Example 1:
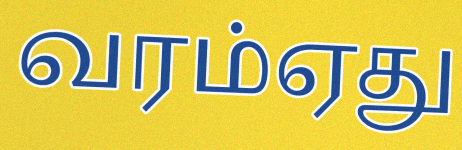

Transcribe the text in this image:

வரம்ஏது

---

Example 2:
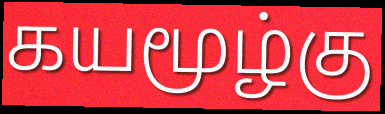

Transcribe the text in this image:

கயமூழ்கு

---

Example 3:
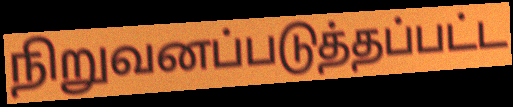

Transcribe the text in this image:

நிறுவனப்படுத்தப்பட்ட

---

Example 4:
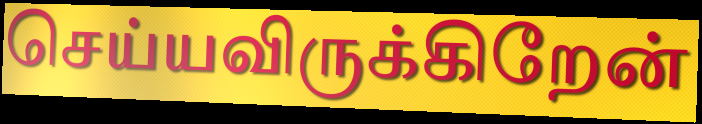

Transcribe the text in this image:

செய்யவிருக்கிறேன்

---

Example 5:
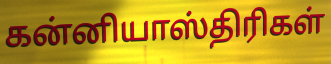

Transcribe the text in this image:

கன்னியாஸ்திரிகள்